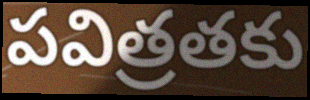
పవిత్రతకు